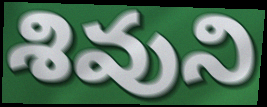
శివుని